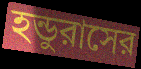
হন্ডুরাসের